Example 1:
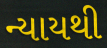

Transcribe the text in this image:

ન્યાયથી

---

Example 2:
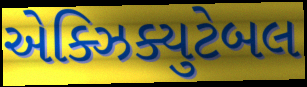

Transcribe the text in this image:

એક્ઝિક્યુટેબલ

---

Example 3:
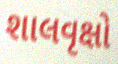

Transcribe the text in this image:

શાલવૃક્ષો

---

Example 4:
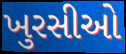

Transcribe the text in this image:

ખુરસીઓ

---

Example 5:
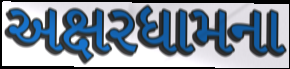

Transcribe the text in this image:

અક્ષરધામના